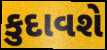
કુદાવશે